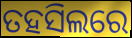
ତହସିଲରେ